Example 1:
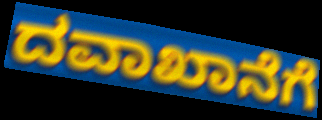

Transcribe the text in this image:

ದವಾಖಾನೆಗೆ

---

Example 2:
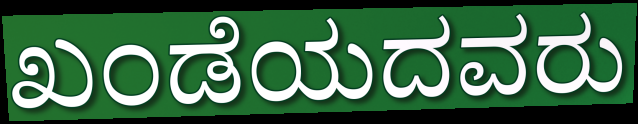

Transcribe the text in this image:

ಖಂಡೆಯದವರು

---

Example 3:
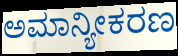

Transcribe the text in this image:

ಅಮಾನ್ಯೀಕರಣ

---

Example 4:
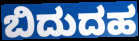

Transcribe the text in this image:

ಬಿದುದಹ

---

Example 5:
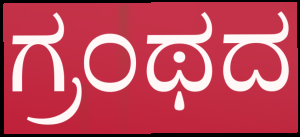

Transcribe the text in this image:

ಗ್ರಂಥದ